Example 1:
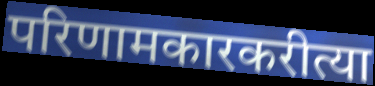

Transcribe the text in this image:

परिणामकारकरीत्या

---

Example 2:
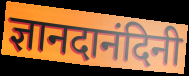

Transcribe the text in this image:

ज्ञानदानंदिनी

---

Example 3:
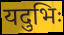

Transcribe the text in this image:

यदुभिः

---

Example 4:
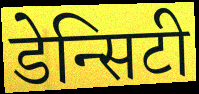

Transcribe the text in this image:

डेन्सिटी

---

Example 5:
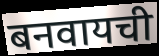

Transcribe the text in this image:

बनवायची